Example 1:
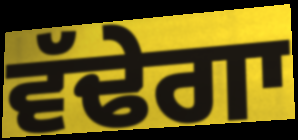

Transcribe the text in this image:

ਵੱਢੇਗਾ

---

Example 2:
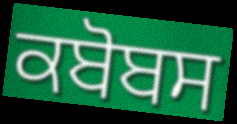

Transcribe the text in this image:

ਕਬੋਬਸ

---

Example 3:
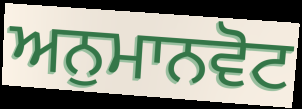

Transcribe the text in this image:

ਅਨੁਮਾਨਵੋਟ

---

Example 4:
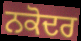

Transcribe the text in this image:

ਨਕੋਦਰ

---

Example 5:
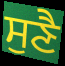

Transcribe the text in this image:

ਸੁਣੈ